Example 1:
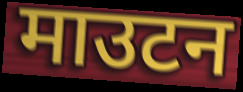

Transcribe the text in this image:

माउटन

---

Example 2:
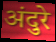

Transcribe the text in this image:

अंदुरे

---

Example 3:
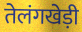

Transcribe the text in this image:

तेलंगखेड़ी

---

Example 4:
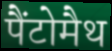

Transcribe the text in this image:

पैंटोमैथ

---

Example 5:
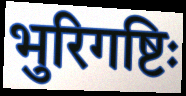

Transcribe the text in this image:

भुरिगष्टिः